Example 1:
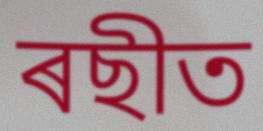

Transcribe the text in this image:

ৰছীত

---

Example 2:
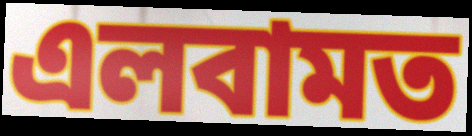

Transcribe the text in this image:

এলবামত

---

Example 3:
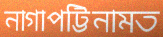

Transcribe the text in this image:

নাগাপট্টিনামত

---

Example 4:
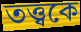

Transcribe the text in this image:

তত্ত্বকে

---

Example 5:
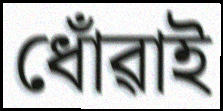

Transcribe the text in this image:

ধোঁৱাই